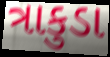
ત્રાકુડા